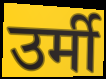
उर्मी